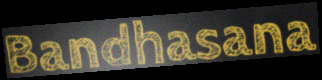
Bandhasana